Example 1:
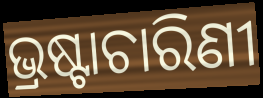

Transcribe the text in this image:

ଭ୍ରଷ୍ଟାଚାରିଣୀ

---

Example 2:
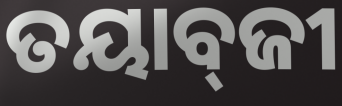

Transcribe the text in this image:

ତୟାବ୍‌ଜୀ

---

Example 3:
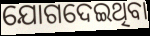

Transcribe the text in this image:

ଯୋଗଦେଇଥିବା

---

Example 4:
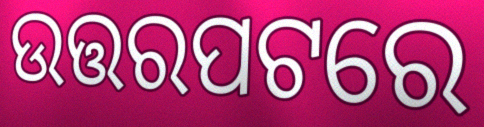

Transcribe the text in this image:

ଉତ୍ତରପଟରେ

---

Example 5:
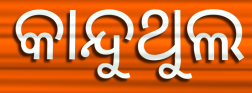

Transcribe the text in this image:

କାନ୍ଦୁଥୁଲ